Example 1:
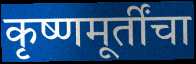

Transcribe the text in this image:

कृष्णमूर्तींचा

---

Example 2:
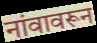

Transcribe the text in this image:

नांवावरून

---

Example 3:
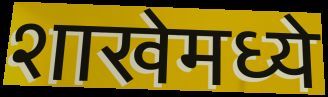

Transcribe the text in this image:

शाखेमध्ये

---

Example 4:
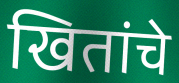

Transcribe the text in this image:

खितांचे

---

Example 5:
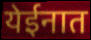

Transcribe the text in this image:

येईनात